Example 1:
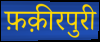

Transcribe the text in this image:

फ़क़ीरपुरी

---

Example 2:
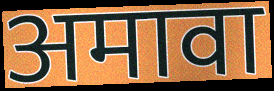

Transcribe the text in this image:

अमावा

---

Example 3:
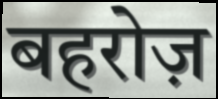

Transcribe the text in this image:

बहरोज़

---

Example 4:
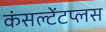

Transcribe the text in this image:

कंसल्टेंटप्लस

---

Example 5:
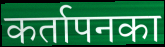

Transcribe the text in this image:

कर्तापनका